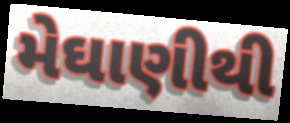
મેઘાણીથી